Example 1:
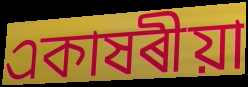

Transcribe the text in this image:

একাষৰীয়া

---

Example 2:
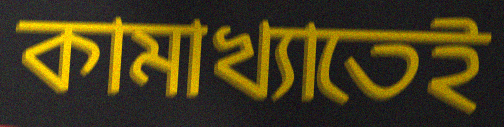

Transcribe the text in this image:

কামাখ্যাতেই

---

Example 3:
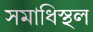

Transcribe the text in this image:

সমাধিস্থল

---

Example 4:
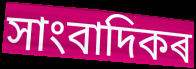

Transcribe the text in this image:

সাংবাদিকৰ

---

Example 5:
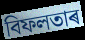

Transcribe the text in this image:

বিফলতাৰ